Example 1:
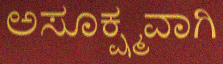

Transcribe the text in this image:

ಅಸೂಕ್ಷ್ಮವಾಗಿ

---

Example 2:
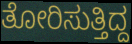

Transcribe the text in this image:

ತೋರಿಸುತ್ತಿದ್ದ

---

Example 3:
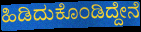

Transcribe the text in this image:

ಹಿಡಿದುಕೊಂಡಿದ್ದೇನೆ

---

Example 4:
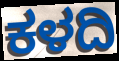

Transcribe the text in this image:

ಕಳದಿ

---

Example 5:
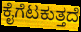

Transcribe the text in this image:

ಕೈಗೆಟಕುತ್ತದೆ